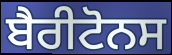
ਬੈਰੀਟੋਨਸ